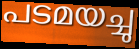
പടമയച്ചു